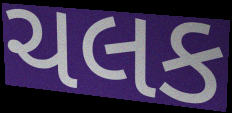
ચલક